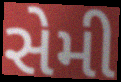
સેમી